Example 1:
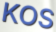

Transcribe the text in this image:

KOS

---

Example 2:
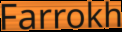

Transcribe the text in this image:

Farrokh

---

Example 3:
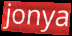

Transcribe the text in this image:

jonya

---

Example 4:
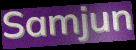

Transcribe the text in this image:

Samjun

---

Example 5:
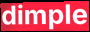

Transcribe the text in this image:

dimple